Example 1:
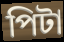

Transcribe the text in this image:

পিটা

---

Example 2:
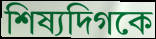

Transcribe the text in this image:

শিষ্যদিগকে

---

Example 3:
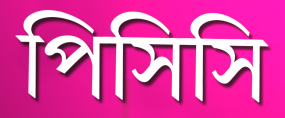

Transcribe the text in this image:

পিসিসি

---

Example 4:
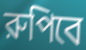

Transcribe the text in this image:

রুপিবে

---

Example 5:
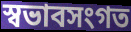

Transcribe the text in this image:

স্বভাবসংগত